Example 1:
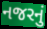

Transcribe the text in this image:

નજરનું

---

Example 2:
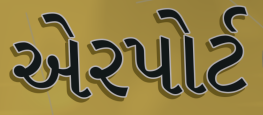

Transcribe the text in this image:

એરપોર્ટ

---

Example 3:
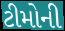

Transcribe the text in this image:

ટીમોની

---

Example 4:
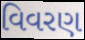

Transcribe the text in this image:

વિવરણ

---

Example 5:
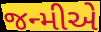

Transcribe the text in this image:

જન્મીએ